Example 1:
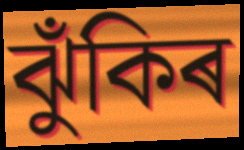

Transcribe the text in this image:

ঝুঁকিৰ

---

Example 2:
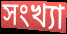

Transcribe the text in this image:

সংখ্যা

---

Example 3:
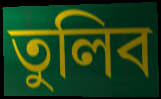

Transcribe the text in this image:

তুলিব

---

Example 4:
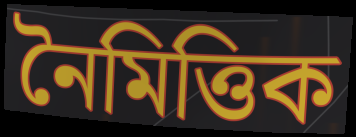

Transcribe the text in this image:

নৈমিত্তিক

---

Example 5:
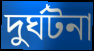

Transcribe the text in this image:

দুৰ্ঘটনা